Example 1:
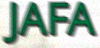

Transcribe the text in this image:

JAFA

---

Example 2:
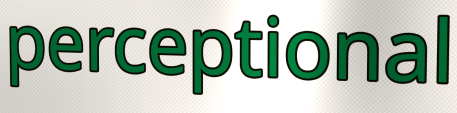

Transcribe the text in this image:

perceptional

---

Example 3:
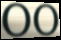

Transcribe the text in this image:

OO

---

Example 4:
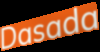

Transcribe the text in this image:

Dasada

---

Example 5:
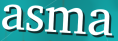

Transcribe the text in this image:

asma